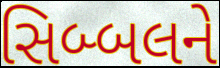
સિબ્બલને